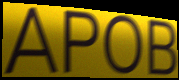
APOB